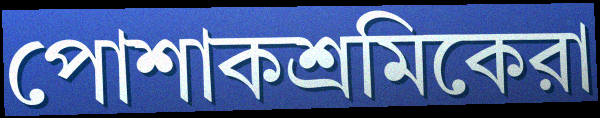
পোশাকশ্রমিকেরা